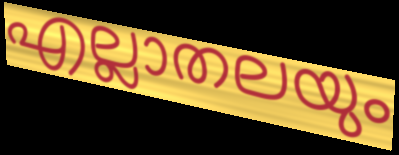
എല്ലാതലയും